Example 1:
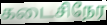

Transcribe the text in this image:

கடைசிநேர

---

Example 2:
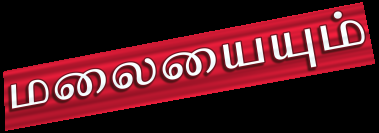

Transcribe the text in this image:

மலையையும்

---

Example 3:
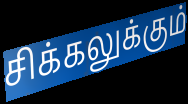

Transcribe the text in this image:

சிக்கலுக்கும்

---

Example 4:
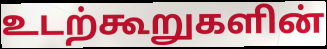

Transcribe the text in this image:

உடற்கூறுகளின்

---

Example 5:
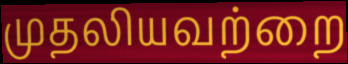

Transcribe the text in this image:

முதலியவற்றை